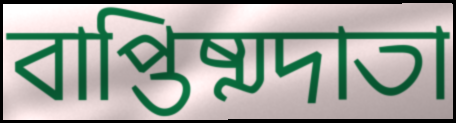
বাপ্তিষ্মদাতা